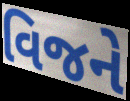
વિજને